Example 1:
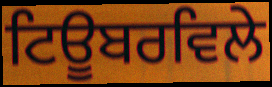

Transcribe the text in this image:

ਟਿਊਬਰਵਿਲੇ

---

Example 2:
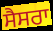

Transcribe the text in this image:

ਸੈਸਰਾ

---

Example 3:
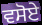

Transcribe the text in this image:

ਵਸੋਏ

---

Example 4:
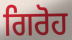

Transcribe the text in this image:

ਗਿਰੋਹ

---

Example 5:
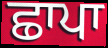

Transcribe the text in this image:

ਛਾਪਾ